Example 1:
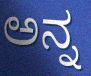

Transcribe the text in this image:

ಅನ್ನ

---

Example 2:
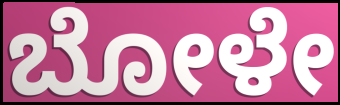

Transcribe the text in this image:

ಬೋಳೇ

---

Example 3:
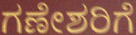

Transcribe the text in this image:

ಗಣೇಶರಿಗೆ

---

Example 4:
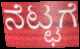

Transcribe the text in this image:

ನೆಟ್ಟಗೆ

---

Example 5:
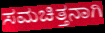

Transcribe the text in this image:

ಸಮಚಿತ್ತನಾಗಿ